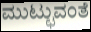
ಮುಟ್ಟುವಂತೆ